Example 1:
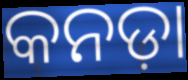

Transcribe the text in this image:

କନଡ଼ା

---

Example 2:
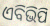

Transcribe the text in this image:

ଏବିଭିପି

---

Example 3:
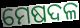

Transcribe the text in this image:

ମେଷଦଳ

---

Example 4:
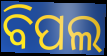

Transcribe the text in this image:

ବିପଲ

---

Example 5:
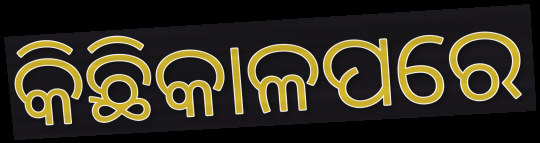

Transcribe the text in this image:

କିଛିକାଳପରେ